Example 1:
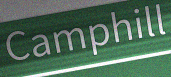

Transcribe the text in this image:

Camphill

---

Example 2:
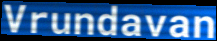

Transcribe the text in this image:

Vrundavan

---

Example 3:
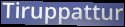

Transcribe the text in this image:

Tiruppattur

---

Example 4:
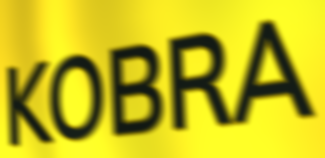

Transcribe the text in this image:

KOBRA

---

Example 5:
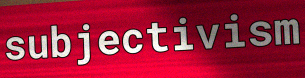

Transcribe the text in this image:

subjectivism